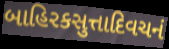
બાહિરકસુત્તાદિવચનં